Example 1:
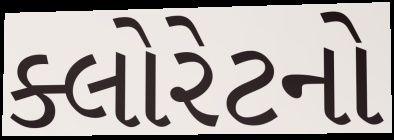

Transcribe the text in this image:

ક્લોરેટનો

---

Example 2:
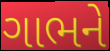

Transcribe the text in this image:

ગાભને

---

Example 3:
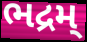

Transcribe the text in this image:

ભદ્રમ્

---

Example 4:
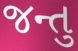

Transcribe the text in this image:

જન્તુ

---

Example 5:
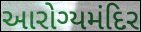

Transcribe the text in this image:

આરોગ્યમંદિર